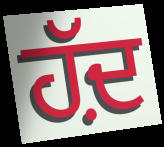
ਹ਼ੱਦ